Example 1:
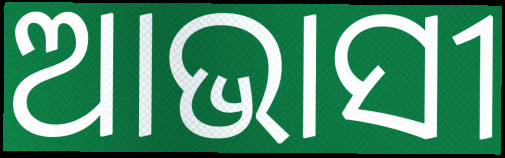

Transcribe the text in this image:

ଆଭାସୀ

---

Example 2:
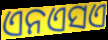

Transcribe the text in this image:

ଏନଏସଏ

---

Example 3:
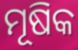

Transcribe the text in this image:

ମୂଷିକ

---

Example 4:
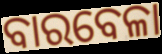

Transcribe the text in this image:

ବାରବେଳା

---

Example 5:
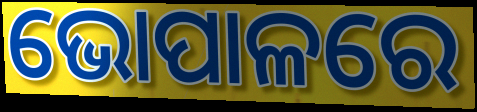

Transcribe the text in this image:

ଭୋପାଳରେ